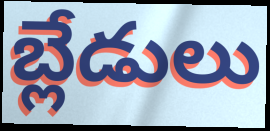
బ్లేడులు